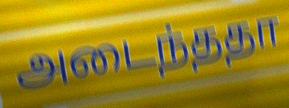
அடைந்ததா